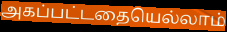
அகப்பட்டதையெல்லாம்